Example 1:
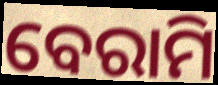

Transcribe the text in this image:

ବେରାମି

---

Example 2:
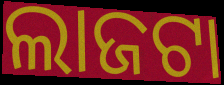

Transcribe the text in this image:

ଲାଜଟା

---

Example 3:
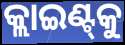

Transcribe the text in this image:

କ୍ଲାଇଣ୍ଟ୍‌କୁ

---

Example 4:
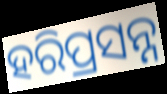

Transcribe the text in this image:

ହରିପ୍ରସନ୍ନ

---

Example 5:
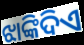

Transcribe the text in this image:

ଝାଙ୍କିଦିଏ